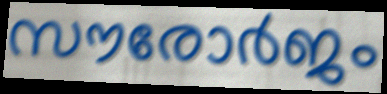
സൗരോർജം